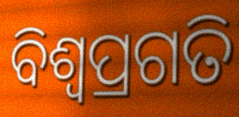
ବିଶ୍ବପ୍ରଗତି